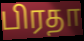
பிரதா